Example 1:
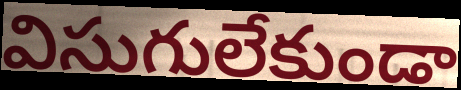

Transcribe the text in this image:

విసుగులేకుండా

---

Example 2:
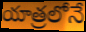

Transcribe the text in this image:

యాత్రలోనే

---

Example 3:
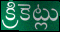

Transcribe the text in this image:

క్రికెట్లు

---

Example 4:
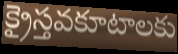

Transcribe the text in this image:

క్రైస్తవకూటాలకు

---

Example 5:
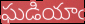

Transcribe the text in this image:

ఘడియాఁ